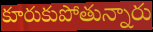
కూరుకుపోతున్నారు